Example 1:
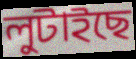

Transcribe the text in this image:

লুটাইছে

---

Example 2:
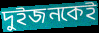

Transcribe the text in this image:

দুইজনকেই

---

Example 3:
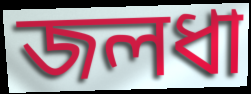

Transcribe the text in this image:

জলধা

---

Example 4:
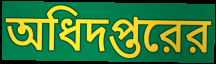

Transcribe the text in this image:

অধিদপ্তরের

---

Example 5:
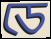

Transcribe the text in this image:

ডে